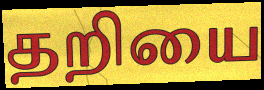
தறியை